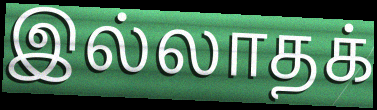
இல்லாதக்